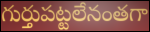
గుర్తుపట్టలేనంతగా